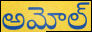
అమోల్